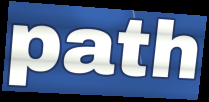
path